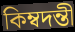
কিম্বদন্তী